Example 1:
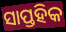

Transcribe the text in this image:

ସାପ୍ତହିକ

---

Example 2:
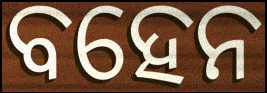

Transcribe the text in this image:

ବହେନ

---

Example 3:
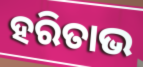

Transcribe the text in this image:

ହରିତାଭ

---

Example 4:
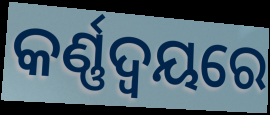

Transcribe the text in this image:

କର୍ଣ୍ଣଦ୍ୱୟରେ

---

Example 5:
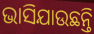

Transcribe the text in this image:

ଭାସିଯାଉଛନ୍ତି